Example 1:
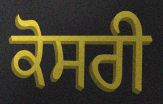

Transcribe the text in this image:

ਕੋਸਰੀ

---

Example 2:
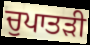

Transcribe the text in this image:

ਚੁਪਾਤੜੀ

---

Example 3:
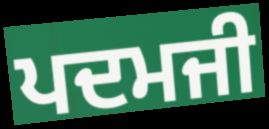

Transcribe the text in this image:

ਪਦਮਜੀ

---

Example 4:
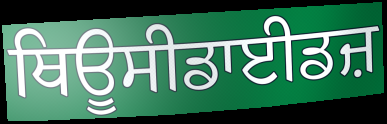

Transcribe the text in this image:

ਥਿਊਸੀਡਾਈਡਜ਼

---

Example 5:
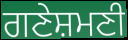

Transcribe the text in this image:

ਗਣੇਸ਼ਮਣੀ